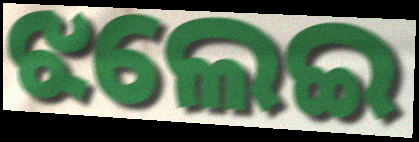
ଝଲେଇ